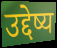
उद्देष्य